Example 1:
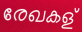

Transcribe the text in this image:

രേഖകള്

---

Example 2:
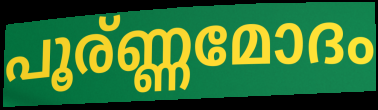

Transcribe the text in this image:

പൂര്ണ്ണമോദം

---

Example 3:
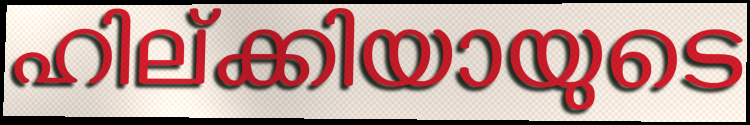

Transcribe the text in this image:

ഹില്ക്കിയായുടെ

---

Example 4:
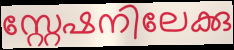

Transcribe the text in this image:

സ്റ്റേഷനിലേക്കു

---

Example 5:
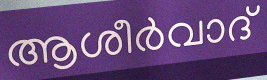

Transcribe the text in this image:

ആശീർവാദ്